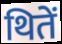
थितें